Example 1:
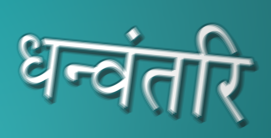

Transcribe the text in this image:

धन्वंतरि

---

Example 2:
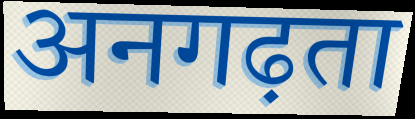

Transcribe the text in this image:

अनगढ़ता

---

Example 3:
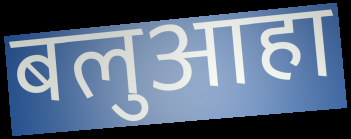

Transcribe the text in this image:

बलुआहा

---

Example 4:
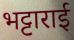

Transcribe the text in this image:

भट्टाराई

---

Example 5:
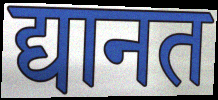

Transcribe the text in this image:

द्यानत